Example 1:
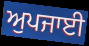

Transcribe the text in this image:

ਅੁਪਜਾਈ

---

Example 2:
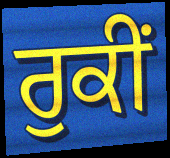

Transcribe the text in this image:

ਰੁਕੀਂ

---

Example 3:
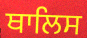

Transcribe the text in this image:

ਥਾਲਿਸ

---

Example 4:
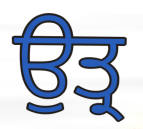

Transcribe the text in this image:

ਉਤ੍ਰ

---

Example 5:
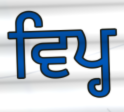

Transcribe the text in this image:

ਵਿਪ੍ਹ